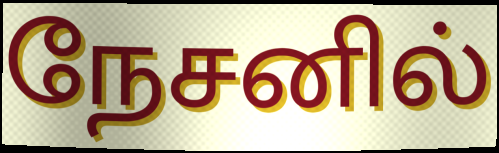
நேசனில்